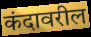
कंदावरील